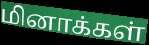
மினாக்கள்